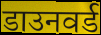
डाउनवर्ड